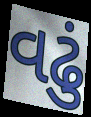
વઢું